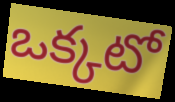
ఒక్కటో